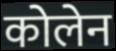
कोलेन